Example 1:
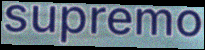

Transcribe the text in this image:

supremo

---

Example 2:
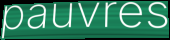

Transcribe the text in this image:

pauvres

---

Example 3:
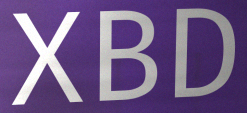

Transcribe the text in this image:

XBD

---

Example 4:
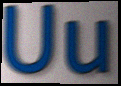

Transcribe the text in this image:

Uu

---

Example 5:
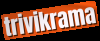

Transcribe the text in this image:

trivikrama